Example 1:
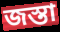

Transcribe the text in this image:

জস্তা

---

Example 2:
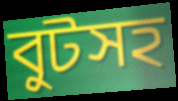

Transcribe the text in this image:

বুটসহ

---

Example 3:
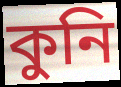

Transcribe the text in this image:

কুনি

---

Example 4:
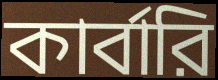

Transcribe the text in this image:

কার্বারি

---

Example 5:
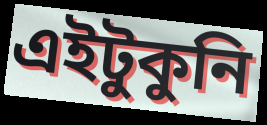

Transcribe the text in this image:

এইটুকুনি